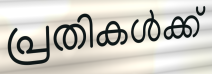
പ്രതികൾക്ക്